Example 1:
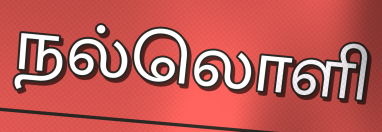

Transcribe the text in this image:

நல்லொளி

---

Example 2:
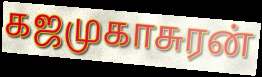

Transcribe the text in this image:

கஜமுகாசுரன்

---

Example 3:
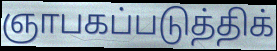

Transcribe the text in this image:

ஞாபகப்படுத்திக்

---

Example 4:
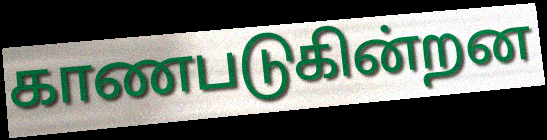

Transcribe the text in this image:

காணபடுகின்றன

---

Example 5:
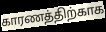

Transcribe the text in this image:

காரணத்திற்காக